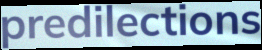
predilections